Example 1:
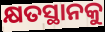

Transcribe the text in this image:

କ୍ଷତସ୍ଥାନକୁ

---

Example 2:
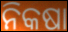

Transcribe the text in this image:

ନିକଷା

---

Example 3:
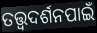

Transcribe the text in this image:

ତତ୍ତ୍ଵଦର୍ଶନପାଇଁ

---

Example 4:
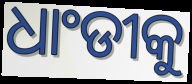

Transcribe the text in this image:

ଧାଂଡୀକୁ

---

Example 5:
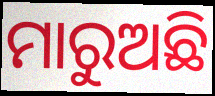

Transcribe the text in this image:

ମାରୁଅଛି